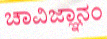
ಚಾವಿಜ್ಞಾನಂ